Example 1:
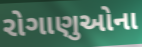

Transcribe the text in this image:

રોગાણુઓના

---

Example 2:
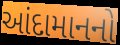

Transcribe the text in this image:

આંદામાનનો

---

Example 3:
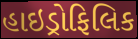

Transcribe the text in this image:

હાઇડ્રોફિલિક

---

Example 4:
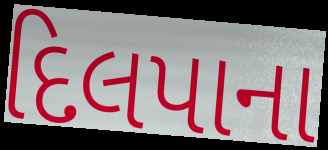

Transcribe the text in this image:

દિલપાના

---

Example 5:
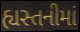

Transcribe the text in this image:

હ્યસ્તનીમાં